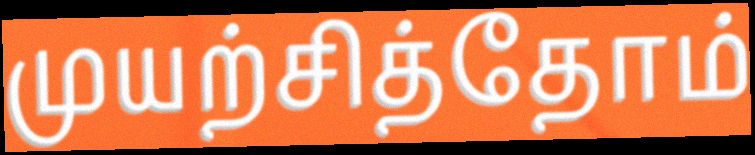
முயற்சித்தோம்